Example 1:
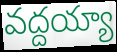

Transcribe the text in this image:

వద్దయ్యా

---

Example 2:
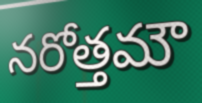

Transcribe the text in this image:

నరోత్తమౌ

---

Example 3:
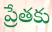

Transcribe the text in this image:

ప్రేతకు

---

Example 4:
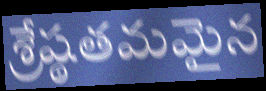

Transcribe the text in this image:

శ్రేష్ఠతమమైన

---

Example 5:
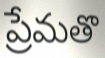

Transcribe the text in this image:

ప్రేమతొ